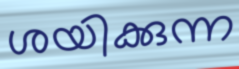
ശയിക്കുന്ന